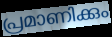
പ്രമാണിക്കും